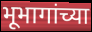
भूभागांच्या